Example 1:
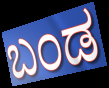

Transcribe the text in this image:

ಬಂಡ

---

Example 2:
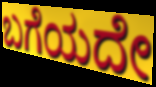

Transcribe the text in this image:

ಬಗೆಯದೇ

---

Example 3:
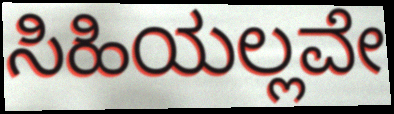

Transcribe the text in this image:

ಸಿಹಿಯಲ್ಲವೇ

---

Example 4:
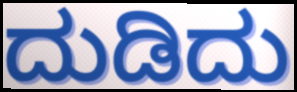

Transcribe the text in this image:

ದುಡಿದು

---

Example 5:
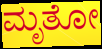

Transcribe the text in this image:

ಮೃತೋ